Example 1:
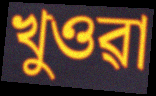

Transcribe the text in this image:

খুওৱা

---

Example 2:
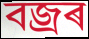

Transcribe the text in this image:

বজ্ৰৰ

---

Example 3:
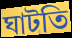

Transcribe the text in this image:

ঘাটতি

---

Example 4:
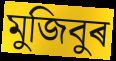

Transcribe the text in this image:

মুজিবুৰ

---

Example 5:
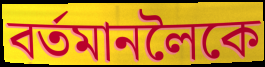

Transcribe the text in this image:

বৰ্তমানলৈকে